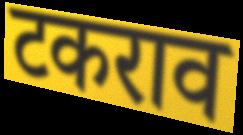
टकराव